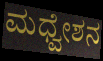
ಮಧ್ವೇಶನ